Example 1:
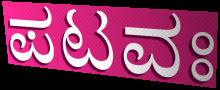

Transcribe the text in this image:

ಪಟವಃ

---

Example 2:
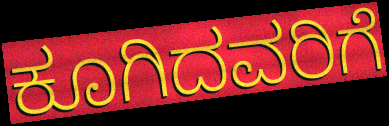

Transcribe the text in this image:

ಕೂಗಿದವರಿಗೆ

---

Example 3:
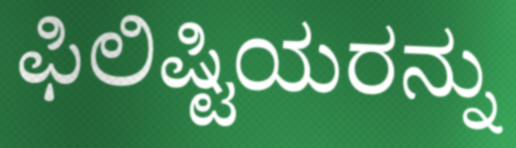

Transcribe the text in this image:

ಫಿಲಿಷ್ಟಿಯರನ್ನು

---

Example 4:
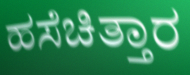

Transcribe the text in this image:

ಹಸೆಚಿತ್ತಾರ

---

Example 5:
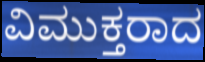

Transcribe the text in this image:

ವಿಮುಕ್ತರಾದ